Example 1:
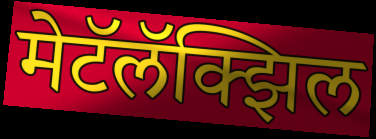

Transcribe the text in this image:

मेटॅलॅक्झिल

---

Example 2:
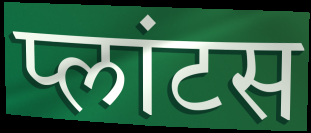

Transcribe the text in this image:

प्लांटस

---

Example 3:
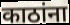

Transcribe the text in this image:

काठांना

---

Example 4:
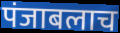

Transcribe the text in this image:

पंजाबलाच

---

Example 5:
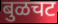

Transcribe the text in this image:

बुळचट